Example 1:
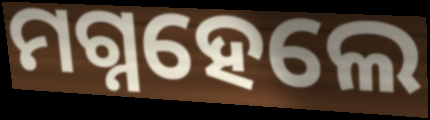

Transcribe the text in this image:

ମଗ୍ନହେଲେ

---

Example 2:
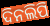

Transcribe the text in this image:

ଦିନଲିପି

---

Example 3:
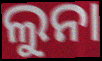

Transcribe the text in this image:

ଲୁନା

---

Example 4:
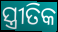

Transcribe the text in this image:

ସ୍ତ୍ରୀତିକ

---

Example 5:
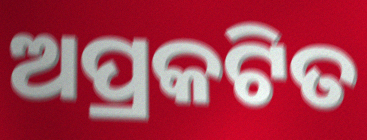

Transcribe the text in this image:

ଅପ୍ରକଟିତ